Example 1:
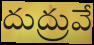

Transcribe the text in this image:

దుద్రువే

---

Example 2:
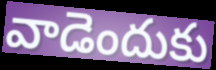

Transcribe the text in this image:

వాడెందుకు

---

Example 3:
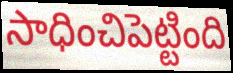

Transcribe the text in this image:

సాధించిపెట్టింది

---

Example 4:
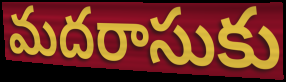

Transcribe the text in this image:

మదరాసుకు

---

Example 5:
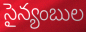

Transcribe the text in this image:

సైన్యంబుల